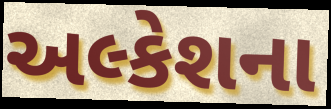
અલ્કેશના